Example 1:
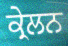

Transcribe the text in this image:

ਕ੍ਰੇਲਨ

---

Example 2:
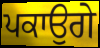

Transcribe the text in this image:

ਪਕਾਉਗੇ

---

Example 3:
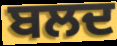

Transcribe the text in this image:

ਬਲਦ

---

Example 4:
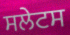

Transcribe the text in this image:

ਸਲੇਟਸ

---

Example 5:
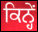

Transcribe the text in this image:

ਕਿਨ੍ਹੇਂ